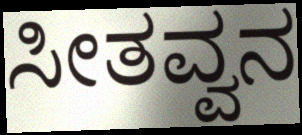
ಸೀತವ್ವನ